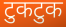
टुकटुक